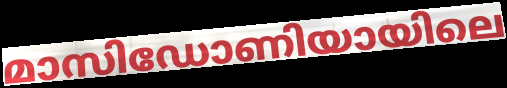
മാസിഡോണിയായിലെ